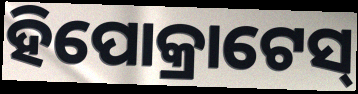
ହିପୋକ୍ରାଟେସ୍